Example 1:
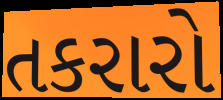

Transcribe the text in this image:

તકરારો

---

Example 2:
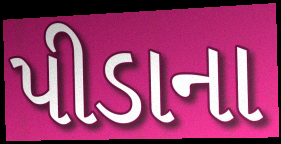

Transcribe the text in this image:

પીડાના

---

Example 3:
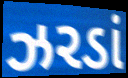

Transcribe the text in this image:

ઝરડાં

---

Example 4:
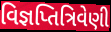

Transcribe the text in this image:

વિજ્ઞપ્તિત્રિવેણી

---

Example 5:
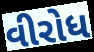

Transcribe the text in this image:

વીરોધ